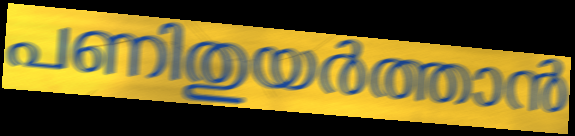
പണിതുയർത്താൻ